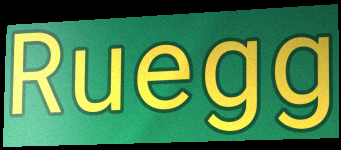
Ruegg